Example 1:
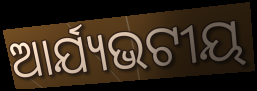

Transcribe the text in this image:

ଆର୍ଯ୍ୟଭଟୀୟ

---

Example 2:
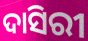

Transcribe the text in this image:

ଦାସିରୀ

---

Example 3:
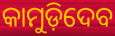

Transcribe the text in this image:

କାମୁଡ଼ିଦେବ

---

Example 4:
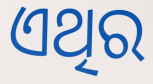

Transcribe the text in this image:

ଏଥିର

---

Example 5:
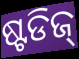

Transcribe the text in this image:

ଷ୍ଟଡିଜ୍